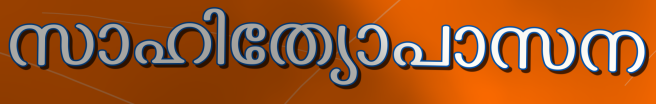
സാഹിത്യോപാസന